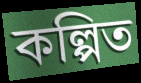
কল্পিত